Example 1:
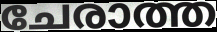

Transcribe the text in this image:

ചേരാത്ത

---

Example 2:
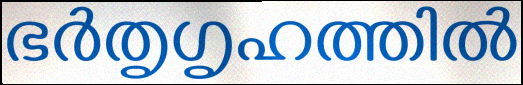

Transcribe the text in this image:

ഭർതൃഗൃഹത്തിൽ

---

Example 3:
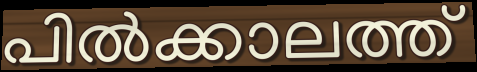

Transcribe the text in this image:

പിൽക്കാലത്ത്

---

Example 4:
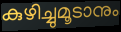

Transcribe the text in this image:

കുഴിച്ചുമൂടാനും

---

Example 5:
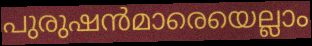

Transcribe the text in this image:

പുരുഷൻമാരെയെല്ലാം